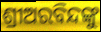
ଶ୍ରୀଅରବିନ୍ଦଙ୍କୁ